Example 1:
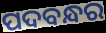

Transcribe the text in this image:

ପଦବନ୍ଧର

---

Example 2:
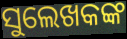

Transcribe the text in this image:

ସୁଲେଖକଙ୍କ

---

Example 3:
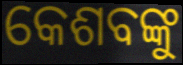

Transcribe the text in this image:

କେଶବଙ୍କୁ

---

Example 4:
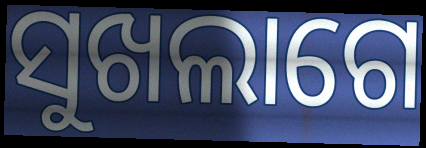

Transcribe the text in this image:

ସୁଖଲାଗେ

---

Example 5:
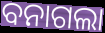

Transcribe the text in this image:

ବନାଗଲା